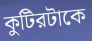
কুটিরটাকে